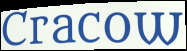
Cracow